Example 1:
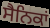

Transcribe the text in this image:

ਸੈਨਿਕਾਂ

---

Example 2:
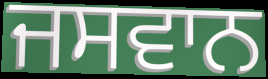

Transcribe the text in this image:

ਜਸਵਾਨ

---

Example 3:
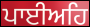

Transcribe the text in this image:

ਪਾਈਅਹਿ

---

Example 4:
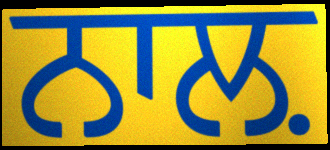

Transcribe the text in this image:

ਨਾਲ਼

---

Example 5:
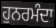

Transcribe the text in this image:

ਹੁਨਰਮੰਦਾ